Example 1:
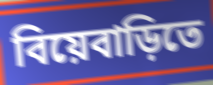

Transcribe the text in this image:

বিয়েবাড়িতে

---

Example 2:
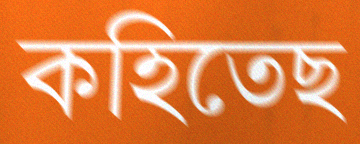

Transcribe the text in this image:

কহিতেছ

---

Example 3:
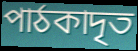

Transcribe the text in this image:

পাঠকাদৃত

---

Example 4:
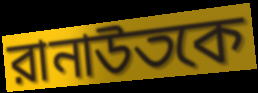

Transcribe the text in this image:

রানাউতকে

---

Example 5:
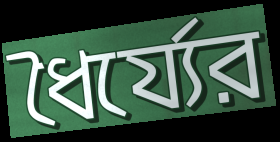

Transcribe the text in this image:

ধৈর্য্যের